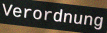
Verordnung